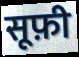
सूफ़ी